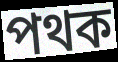
পথক